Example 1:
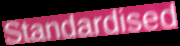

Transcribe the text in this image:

Standardised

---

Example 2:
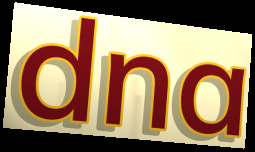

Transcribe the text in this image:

dna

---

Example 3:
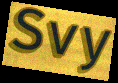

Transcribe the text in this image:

Svy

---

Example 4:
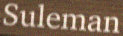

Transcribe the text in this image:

Suleman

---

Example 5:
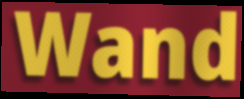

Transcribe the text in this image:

Wand